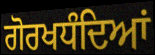
ਗੋਰਖਧੰਦਿਆਂ